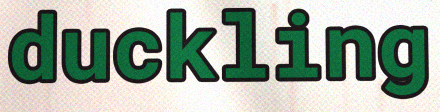
duckling